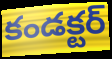
కండక్టర్